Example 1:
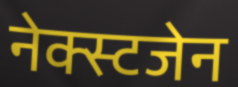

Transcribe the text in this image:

नेक्स्टजेन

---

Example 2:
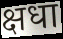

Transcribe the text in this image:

क्षधा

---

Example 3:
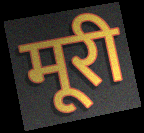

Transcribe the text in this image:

मूरी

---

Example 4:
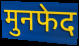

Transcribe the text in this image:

मुनफेद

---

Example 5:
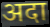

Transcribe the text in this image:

अदा